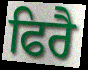
ਫਿਰੈ